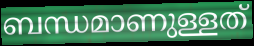
ബന്ധമാണുള്ളത്